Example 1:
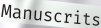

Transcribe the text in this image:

Manuscrits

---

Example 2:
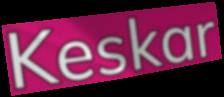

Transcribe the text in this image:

Keskar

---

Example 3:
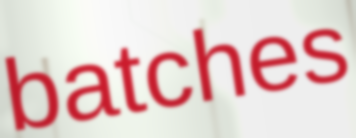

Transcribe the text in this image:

batches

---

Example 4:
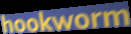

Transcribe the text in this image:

hookworm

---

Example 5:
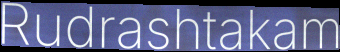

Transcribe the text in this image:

Rudrashtakam